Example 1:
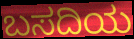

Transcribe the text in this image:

ಬಸದಿಯ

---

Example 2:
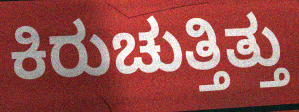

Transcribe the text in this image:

ಕಿರುಚುತ್ತಿತ್ತು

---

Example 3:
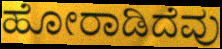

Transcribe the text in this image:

ಹೋರಾಡಿದೆವು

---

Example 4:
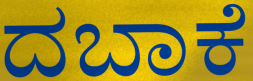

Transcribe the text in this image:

ದಬಾಕೆ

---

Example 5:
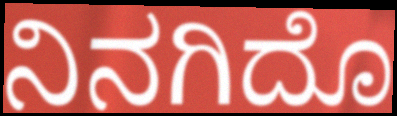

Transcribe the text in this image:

ನಿನಗಿದೊ